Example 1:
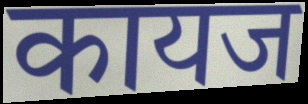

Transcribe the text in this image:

कायज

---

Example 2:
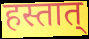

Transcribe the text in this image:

हस्तात्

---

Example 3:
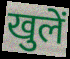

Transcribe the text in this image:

खुलें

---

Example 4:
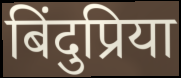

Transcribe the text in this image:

बिंदुप्रिया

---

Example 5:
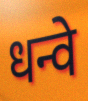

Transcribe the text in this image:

धन्वे